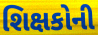
શિક્ષકોની